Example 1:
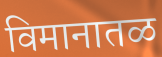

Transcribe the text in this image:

विमानातळ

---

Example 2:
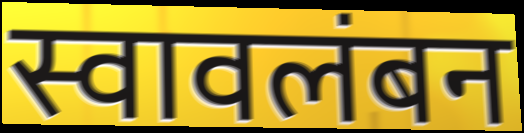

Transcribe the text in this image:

स्वावलंबन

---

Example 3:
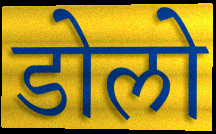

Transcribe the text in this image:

डोलो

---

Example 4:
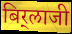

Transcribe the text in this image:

बिर्लाजी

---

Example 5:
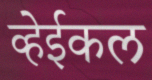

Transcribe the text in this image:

व्हेईकल